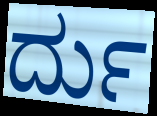
ರ್ದು